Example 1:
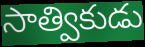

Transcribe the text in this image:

సాత్వికుడు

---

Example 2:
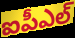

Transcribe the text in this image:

ఐపీఎల్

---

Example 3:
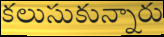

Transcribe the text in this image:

కలుసుకున్నారు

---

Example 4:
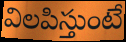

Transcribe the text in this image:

విలపిస్తుంటే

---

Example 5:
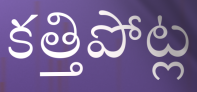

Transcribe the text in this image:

కత్తిపోట్ల